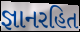
જ્ઞાનરહિત